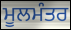
ਮੂਲਮੰਤਰ